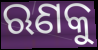
ଋଣକୁ